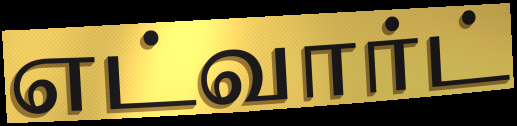
எட்வார்ட்